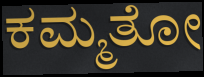
ಕಮ್ಮತೋ